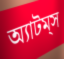
অ্যাটম্‌স